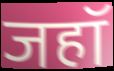
जहॉ